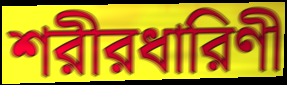
শরীরধারিণী